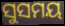
ସୁସମୟ